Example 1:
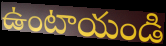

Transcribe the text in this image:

ఉంటాయండి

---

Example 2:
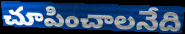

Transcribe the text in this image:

చూపించాలనేది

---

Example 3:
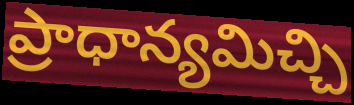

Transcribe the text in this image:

ప్రాధాన్యమిచ్చి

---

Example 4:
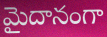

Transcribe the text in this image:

మైదానంగా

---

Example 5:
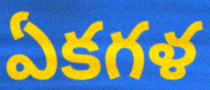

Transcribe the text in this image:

ఏకగళ